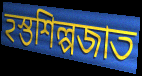
হস্তশিল্পজাত